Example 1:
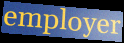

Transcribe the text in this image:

employer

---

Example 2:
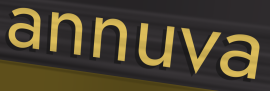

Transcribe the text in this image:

annuva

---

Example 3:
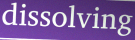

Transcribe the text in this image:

dissolving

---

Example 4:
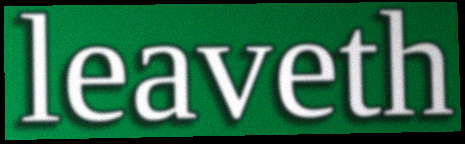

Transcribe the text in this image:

leaveth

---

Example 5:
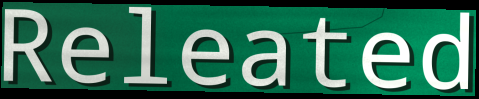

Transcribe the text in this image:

Releated